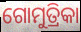
ଗୋମୁତ୍ରିକା